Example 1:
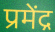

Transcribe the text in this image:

प्रमेंद्र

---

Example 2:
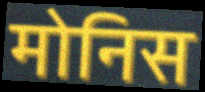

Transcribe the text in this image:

मोनिस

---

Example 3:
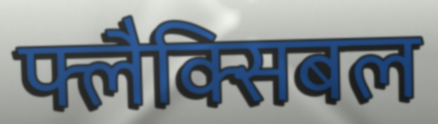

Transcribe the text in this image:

फ्लैक्सिबल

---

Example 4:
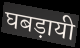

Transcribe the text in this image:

घबड़ायी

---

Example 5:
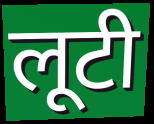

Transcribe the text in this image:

लूटी